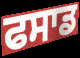
ਫਸਾਡ